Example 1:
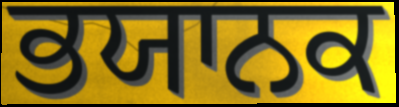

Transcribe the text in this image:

ਭਯਾਨਕ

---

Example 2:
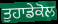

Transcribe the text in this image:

ਤੁਹਾਡੇਕੋਲ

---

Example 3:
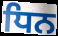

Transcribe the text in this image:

ਧਿਨ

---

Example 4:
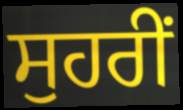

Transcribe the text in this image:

ਸੁਹਰੀਂ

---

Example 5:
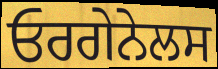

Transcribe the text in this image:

ਓਰਗੇਨੇਲਸ